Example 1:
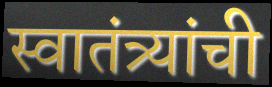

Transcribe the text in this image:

स्वातंत्र्यांची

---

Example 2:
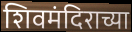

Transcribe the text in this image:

शिवमंदिराच्या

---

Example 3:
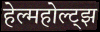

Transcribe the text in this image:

हेल्महोल्ट्झ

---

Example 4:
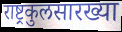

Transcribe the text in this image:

राष्ट्रकुलसारख्या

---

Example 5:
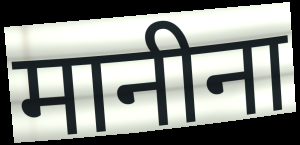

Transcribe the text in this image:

मानीना